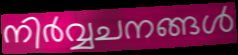
നിർവ്വചനങ്ങൾ